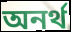
অনৰ্থ